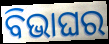
ବିଭାଘର